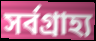
সর্বগ্রাহ্য